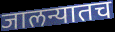
जालन्यातच